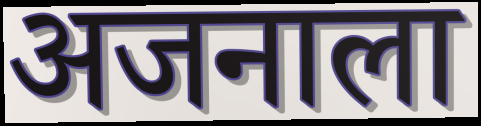
अजनाला